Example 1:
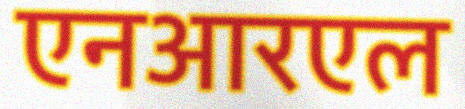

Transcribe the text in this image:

एनआरएल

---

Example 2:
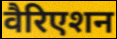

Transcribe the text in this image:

वैरिएशन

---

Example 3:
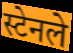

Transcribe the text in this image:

स्टेनले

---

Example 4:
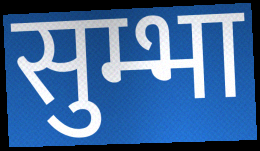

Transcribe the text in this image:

सुम्भा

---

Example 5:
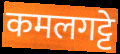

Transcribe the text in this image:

कमलगट्टे